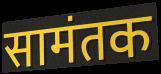
सामंतक